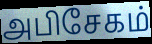
அபிசேகம்